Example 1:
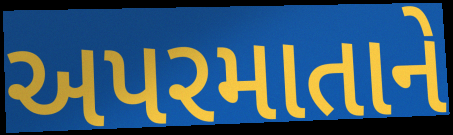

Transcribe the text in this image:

અપરમાતાને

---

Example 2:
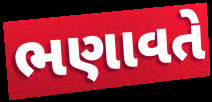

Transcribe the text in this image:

ભણાવતે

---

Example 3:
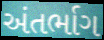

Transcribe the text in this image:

અંતર્ભાગ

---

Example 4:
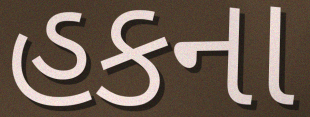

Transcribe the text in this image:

હકના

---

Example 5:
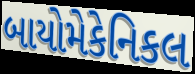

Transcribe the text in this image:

બાયોમેકેનિકલ